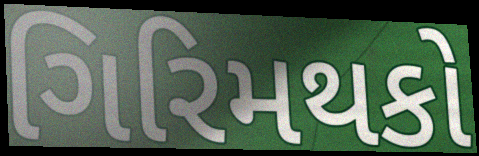
ગિરિમથકો